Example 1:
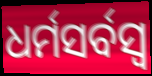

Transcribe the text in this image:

ଧର୍ମସର୍ବସ୍ୱ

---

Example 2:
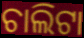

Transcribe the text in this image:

ଚାଲିଟା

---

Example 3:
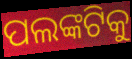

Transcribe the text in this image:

ପଲଙ୍କଟିକୁ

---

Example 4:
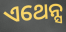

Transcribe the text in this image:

ଏଥେନ୍ସ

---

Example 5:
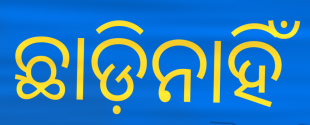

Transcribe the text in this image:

ଛାଡ଼ିନାହିଁ